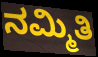
ನಮ್ಮಿತಿ